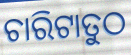
ଚାରିଟାତୁଠ